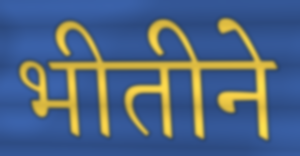
भीतीने